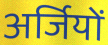
अर्जियों